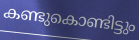
കണ്ടുകൊണ്ടിട്ടും